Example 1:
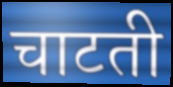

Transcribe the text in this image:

चाटती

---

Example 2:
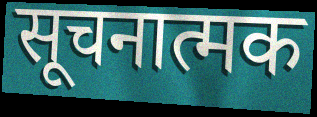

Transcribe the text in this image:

सूचनात्मक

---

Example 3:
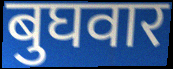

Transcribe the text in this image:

बुघवार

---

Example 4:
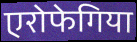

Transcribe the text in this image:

एरोफेगिया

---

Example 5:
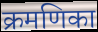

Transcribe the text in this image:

क्रमणिका